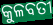
କୁଳବତୀ